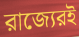
রাজ্যেরই